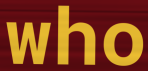
who